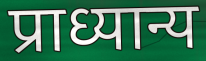
प्राध्यान्य